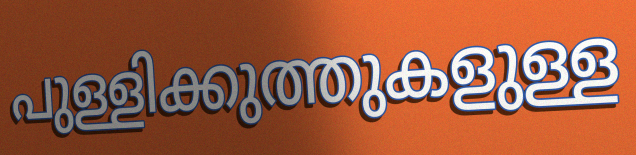
പുള്ളിക്കുത്തുകളുള്ള